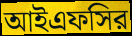
আইএফসির